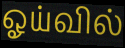
ஓய்வில்